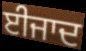
ਈਜਾਦ